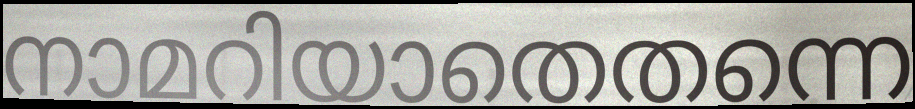
നാമറിയാതെതന്നെ